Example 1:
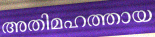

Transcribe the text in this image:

അതിമഹത്തായ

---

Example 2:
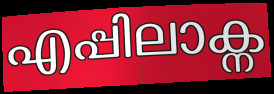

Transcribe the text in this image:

എപ്പിലാക്ന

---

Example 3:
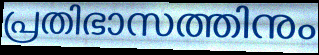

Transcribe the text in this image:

പ്രതിഭാസത്തിനും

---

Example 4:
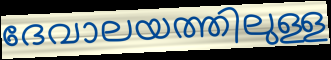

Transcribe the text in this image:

ദേവാലയത്തിലുള്ള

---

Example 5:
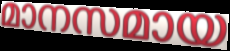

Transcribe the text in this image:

മാനസമായ